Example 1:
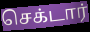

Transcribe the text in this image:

செக்டார்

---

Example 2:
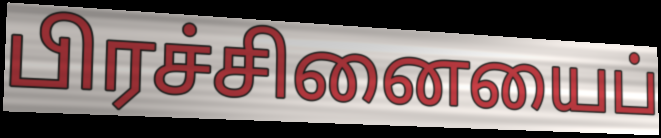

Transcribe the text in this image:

பிரச்சினையைப்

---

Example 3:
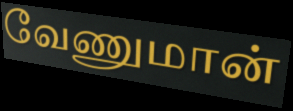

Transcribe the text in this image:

வேணுமான்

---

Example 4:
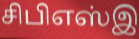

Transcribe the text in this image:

சிபிஎஸ்இ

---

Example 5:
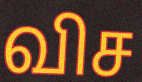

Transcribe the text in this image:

விச